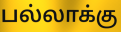
பல்லாக்கு